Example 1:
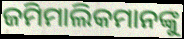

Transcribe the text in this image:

ଜମିମାଲିକମାନଙ୍କୁ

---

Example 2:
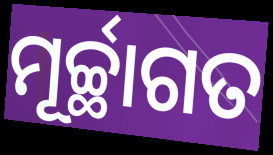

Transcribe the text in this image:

ମୂର୍ଚ୍ଛାଗତ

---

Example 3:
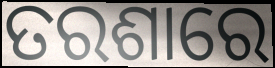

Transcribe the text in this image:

ତରଶାରେ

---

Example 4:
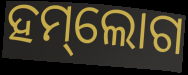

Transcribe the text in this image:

ହମ୍‌ଲୋଗ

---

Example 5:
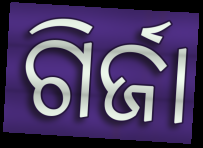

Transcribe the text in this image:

ଗିର୍ଜା